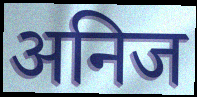
अनिज